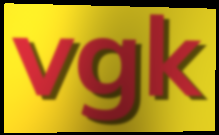
vgk